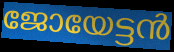
ജോയേട്ടൻ